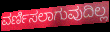
ವರ್ಣಿಸಲಾಗುವುದಿಲ್ಲ